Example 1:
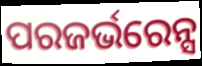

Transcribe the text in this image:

ପରଜର୍ଭରେନ୍ସ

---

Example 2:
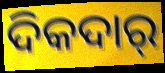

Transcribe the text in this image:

ଦିକଦାର୍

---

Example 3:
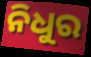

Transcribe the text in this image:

ନିଧୁର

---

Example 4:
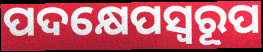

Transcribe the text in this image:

ପଦକ୍ଷେପସ୍ଵରୂପ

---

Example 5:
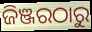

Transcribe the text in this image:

ଜିଞ୍ଜରଠାରୁ